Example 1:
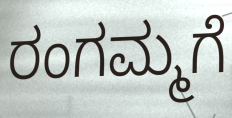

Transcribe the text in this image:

ರಂಗಮ್ಮಗೆ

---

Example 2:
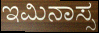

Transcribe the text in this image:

ಇಮಿನಾಸ್ಸ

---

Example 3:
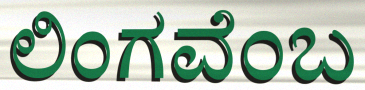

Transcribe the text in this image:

ಲಿಂಗವೆಂಬ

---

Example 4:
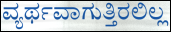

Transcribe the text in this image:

ವ್ಯರ್ಥವಾಗುತ್ತಿರಲಿಲ್ಲ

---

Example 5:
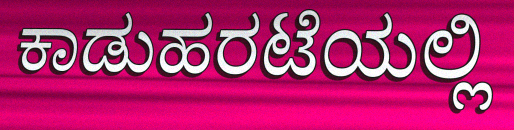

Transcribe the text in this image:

ಕಾಡುಹರಟೆಯಲ್ಲಿ